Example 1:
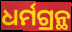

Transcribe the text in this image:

ଧର୍ମଗ୍ରନ୍ଥ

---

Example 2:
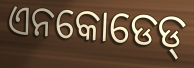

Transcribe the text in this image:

ଏନକୋଡେଡ୍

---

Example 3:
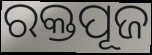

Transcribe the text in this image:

ରକ୍ତପୂଜ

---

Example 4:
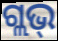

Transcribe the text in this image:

ଗ୍ଲଭ୍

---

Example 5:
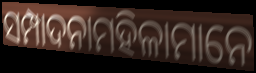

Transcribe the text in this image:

ସମ୍ପାଦନାମହିଳାମାନେ